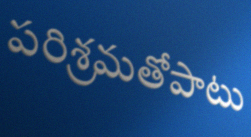
పరిశ్రమతోపాటు